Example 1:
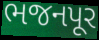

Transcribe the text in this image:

ભજનપૂર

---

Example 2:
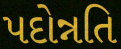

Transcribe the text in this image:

પદોન્નતિ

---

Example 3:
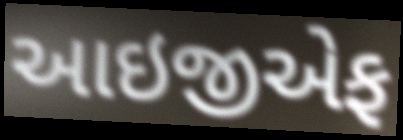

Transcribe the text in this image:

આઇજીએફ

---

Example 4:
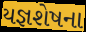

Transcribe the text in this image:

યજ્ઞશેષના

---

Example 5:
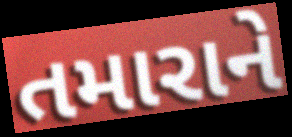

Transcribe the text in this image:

તમારાને